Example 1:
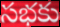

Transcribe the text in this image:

సభకు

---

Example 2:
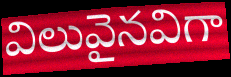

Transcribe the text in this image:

విలువైనవిగా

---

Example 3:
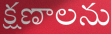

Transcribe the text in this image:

క్షణాలను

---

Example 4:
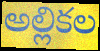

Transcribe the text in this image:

అల్లికల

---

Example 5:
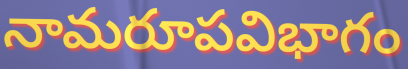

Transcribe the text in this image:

నామరూపవిభాగం